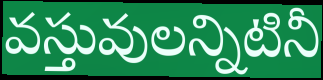
వస్తువులన్నిటినీ